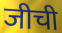
जीची